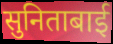
सुनिताबाई